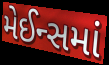
મેઈન્સમાં